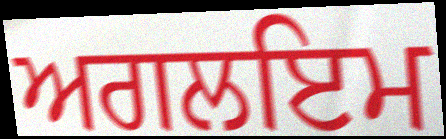
ਅਗਲਇਮ